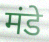
मंडे